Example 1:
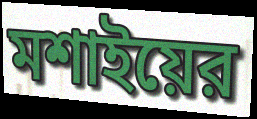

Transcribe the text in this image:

মশাইয়ের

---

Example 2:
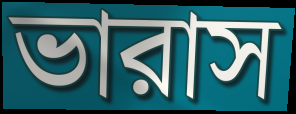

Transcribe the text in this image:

ভারাস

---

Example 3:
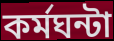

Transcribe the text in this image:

কর্মঘন্টা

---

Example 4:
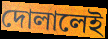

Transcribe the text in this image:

দোলালেই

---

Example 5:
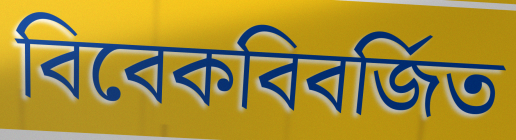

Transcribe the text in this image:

বিবেকবিবর্জিত